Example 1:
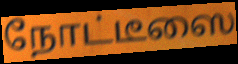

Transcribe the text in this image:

நோட்டீஸை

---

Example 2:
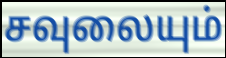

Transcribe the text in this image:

சவுலையும்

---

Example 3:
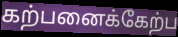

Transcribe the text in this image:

கற்பனைக்கேற்ப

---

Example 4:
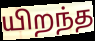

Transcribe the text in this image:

யிறந்த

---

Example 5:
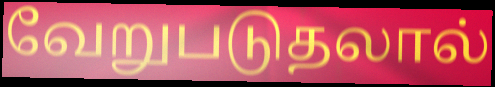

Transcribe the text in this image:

வேறுபடுதலால்